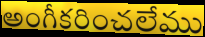
అంగీకరించలేము